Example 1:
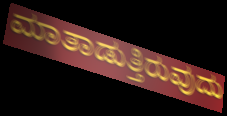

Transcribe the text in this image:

ಮಾತಾಡುತ್ತಿರುವುದು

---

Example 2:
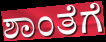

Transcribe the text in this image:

ಶಾಂತೆಗೆ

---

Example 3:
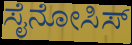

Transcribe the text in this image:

ಸೈನೋಸಿಸ್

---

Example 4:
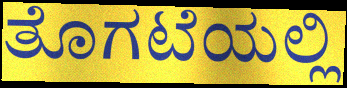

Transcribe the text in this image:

ತೊಗಟೆಯಲ್ಲಿ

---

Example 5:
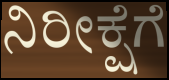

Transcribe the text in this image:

ನಿರೀಕ್ಷೆಗೆ